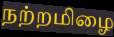
நற்றமிழை